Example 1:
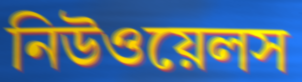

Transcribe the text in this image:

নিউওয়েলস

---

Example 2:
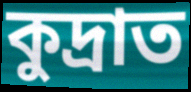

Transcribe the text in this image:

কুদ্রাত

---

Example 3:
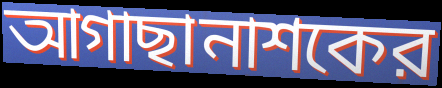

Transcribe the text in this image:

আগাছানাশকের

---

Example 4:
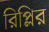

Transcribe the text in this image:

রিপ্লির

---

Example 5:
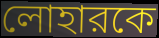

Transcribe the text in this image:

লোহারকে